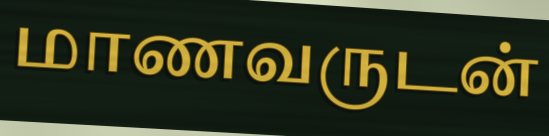
மாணவருடன்